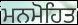
ਮਨਮੋਹਿਤ